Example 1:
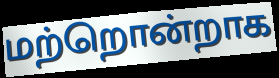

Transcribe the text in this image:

மற்றொன்றாக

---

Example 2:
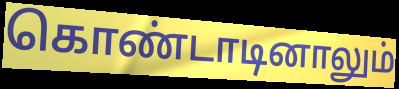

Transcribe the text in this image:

கொண்டாடினாலும்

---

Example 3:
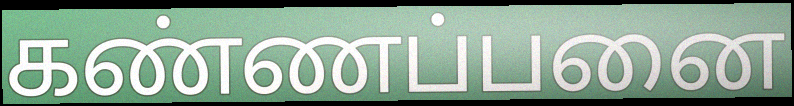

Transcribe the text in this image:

கண்ணப்பனை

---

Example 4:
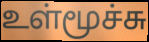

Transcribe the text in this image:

உள்மூச்சு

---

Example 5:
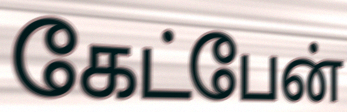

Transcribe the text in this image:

கேட்பேன்